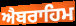
ਐਬਰਾਹਿਮ